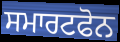
ਸਮਾਰਟਫੋਨ